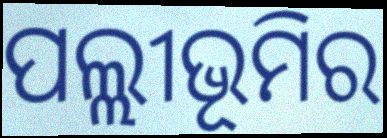
ପଲ୍ଲୀଭୂମିର